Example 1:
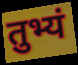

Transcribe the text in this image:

तुभ्यं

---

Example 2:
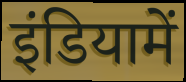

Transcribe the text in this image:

इंडियामें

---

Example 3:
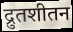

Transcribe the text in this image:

द्रुतशीतन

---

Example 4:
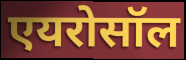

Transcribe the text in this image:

एयरोसॉल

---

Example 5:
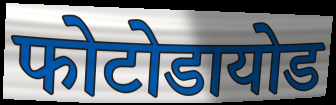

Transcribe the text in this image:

फोटोडायोड